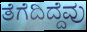
ತೆಗೆದಿದ್ದೆವು